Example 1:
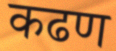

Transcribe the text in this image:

कढण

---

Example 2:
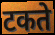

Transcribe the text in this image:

टकते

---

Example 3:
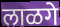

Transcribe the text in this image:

लाळगे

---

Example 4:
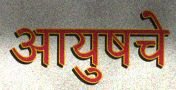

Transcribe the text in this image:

आयुषचे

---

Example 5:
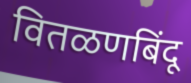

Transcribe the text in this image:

वितळणबिंदू